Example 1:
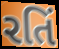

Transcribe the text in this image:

રતિં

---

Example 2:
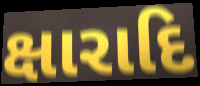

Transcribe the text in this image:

ક્ષારાદિ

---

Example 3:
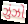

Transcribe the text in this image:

ઝુંઝો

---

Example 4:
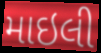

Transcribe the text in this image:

માઇલી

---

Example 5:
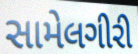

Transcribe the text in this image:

સામેલગીરી